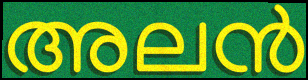
അലൻ